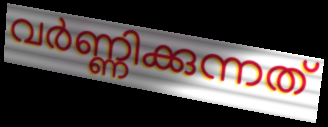
വർണ്ണിക്കുന്നത്